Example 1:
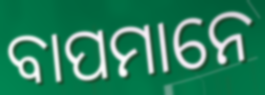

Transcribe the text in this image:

ବାପମାନେ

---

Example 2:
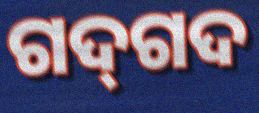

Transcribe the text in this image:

ଗଦ୍‌ଗଦ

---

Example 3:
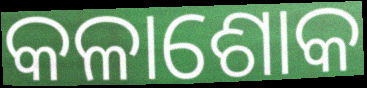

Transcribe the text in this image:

କଳାଶୋକ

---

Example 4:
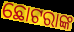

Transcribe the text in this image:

ଛୋଟରାଙ୍କ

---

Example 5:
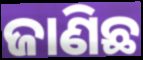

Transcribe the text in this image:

ଜାଣିଛ